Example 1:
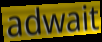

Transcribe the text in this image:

adwait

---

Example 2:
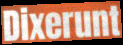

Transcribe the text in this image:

Dixerunt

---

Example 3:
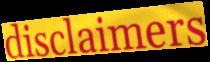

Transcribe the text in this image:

disclaimers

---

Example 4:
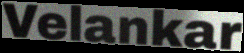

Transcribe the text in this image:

Velankar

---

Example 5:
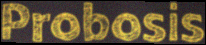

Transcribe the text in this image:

Probosis